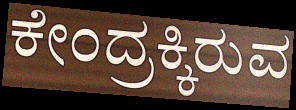
ಕೇಂದ್ರಕ್ಕಿರುವ